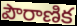
పౌరాణిక